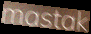
mastak